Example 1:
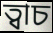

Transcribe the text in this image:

ত্বাচ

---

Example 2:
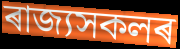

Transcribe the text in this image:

ৰাজ্যসকলৰ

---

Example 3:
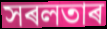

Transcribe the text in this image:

সৰলতাৰ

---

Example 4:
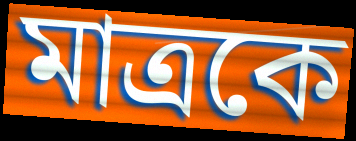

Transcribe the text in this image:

মাত্ৰকে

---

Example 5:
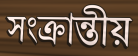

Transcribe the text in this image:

সংক্ৰান্তীয়